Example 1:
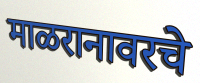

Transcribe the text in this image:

माळरानावरचे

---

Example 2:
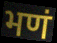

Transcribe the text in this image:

भणं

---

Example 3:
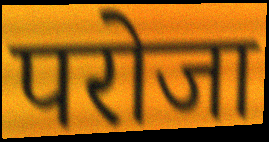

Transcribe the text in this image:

परोजा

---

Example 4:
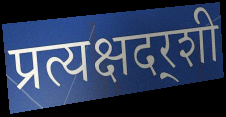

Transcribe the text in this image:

प्रत्यक्षदर्शी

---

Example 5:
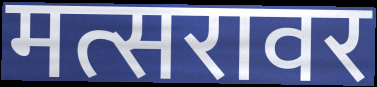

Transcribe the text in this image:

मत्सरावर